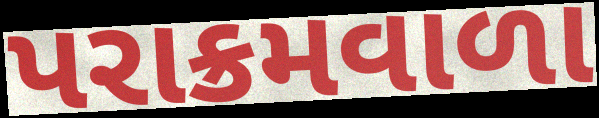
પરાક્રમવાળા